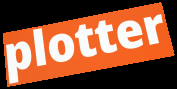
plotter